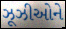
ઝૂઝીઓને